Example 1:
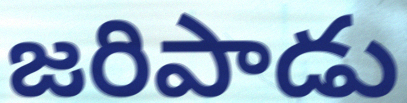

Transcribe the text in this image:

జరిపాడు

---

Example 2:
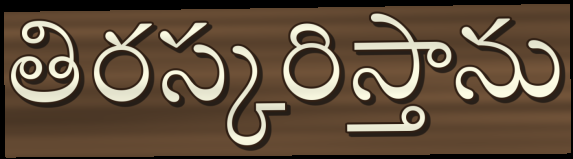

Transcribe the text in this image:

తిరస్కరిస్తాను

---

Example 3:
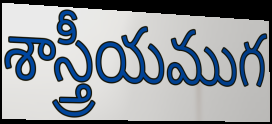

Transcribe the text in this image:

శాస్త్రీయముగ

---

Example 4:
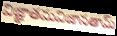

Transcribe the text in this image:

విజ్ఞాతమవిజానతామ్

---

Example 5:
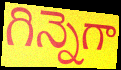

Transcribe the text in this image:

గిన్నెగా